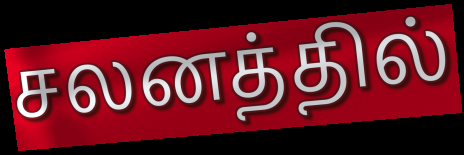
சலனத்தில்